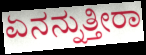
ಏನನ್ನುತ್ತೀರಾ